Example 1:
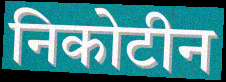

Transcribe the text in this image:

निकोटीन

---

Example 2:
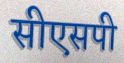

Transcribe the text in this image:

सीएसपी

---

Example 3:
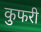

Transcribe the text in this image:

कुफरी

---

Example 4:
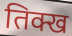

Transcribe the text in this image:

तिक्ख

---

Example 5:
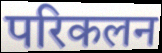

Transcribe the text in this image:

परिकलन